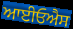
ਆਈਓਐਸ